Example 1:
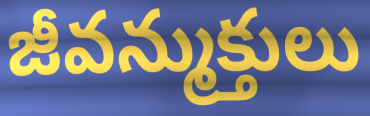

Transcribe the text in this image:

జీవన్ముక్తులు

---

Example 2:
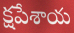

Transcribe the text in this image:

క్షపేశాయ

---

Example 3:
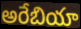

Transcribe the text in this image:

అరేబియా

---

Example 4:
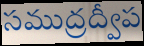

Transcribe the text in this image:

సముద్రద్వీప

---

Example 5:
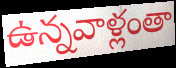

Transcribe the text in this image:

ఉన్నవాళ్లంతా